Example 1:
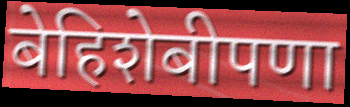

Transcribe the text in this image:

बेहिशेबीपणा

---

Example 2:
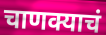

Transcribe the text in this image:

चाणक्याचं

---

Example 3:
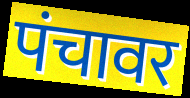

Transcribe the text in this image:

पंचावर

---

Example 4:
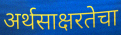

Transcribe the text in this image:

अर्थसाक्षरतेचा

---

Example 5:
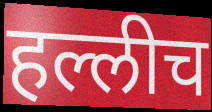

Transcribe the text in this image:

हल्लीच